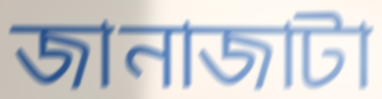
জানাজাটা